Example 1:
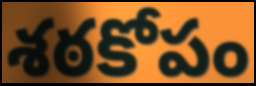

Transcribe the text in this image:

శఠకోపం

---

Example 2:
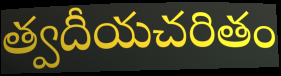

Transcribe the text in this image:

త్వదీయచరితం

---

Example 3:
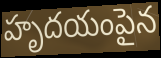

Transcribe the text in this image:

హృదయంపైన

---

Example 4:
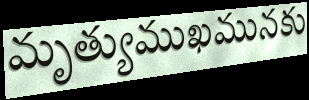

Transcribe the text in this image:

మృత్యుముఖమునకు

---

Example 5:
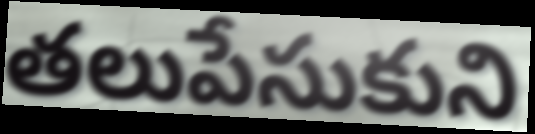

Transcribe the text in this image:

తలుపేసుకుని